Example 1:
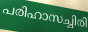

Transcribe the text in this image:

പരിഹാസച്ചിരി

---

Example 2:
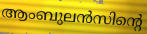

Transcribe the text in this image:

ആംബുലൻസിന്റെ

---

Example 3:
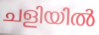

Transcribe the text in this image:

ചളിയിൽ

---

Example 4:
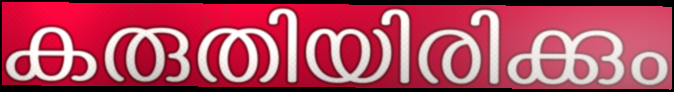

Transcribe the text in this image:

കരുതിയിരിക്കും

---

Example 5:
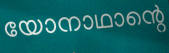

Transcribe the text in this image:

യോനാഥാന്റെ